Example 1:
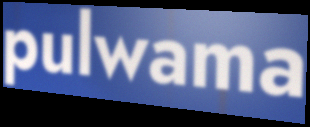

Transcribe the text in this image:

pulwama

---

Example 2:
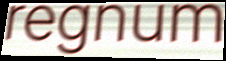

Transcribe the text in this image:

regnum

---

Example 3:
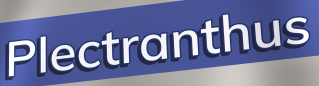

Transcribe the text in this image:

Plectranthus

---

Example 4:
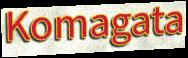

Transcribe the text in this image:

Komagata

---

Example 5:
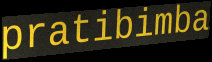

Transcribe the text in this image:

pratibimba